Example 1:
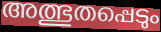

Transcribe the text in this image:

അത്ഭുതപ്പെടും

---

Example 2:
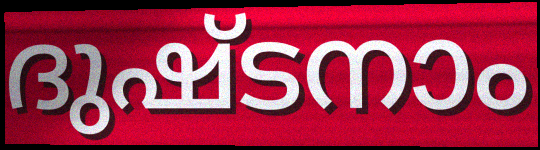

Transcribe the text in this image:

ദുഷ്ടനാം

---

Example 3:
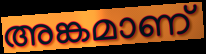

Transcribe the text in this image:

അങ്കമാണ്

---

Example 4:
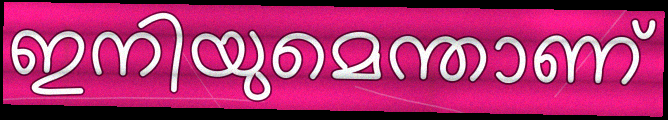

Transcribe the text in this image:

ഇനിയുമെന്താണ്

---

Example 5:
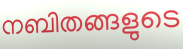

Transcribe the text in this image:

നബിതങ്ങളുടെ